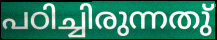
പഠിച്ചിരുന്നതു്